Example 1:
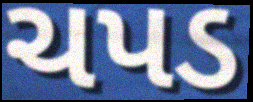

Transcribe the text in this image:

ચપડ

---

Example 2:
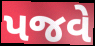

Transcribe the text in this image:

પજવે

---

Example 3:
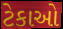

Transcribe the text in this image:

ટેકાઓ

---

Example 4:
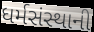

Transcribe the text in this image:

ધર્મસંસ્થાની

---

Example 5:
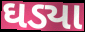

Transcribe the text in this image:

ઘડ્યા